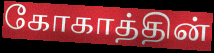
கோகாத்தின்